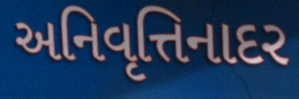
અનિવૃત્તિનાદર